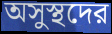
অসুস্থদের